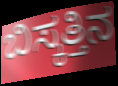
ಬಿಸ್ಕತ್ತಿನ